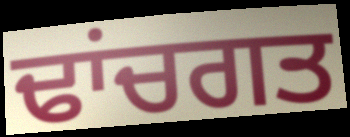
ਢਾਂਚਗਤ